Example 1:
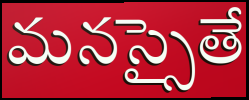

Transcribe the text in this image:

మనస్సైతే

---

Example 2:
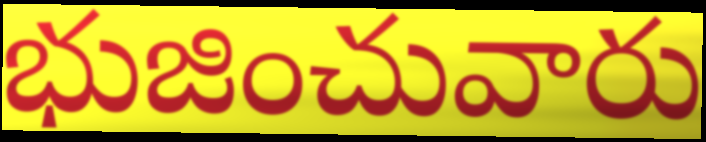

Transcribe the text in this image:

భుజించువారు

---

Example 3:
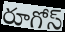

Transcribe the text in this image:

రూగోస్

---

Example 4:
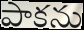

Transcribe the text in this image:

పాకను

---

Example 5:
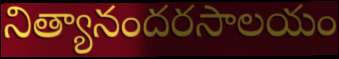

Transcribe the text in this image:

నిత్యానందరసాలయం